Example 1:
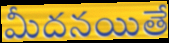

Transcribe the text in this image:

మీదనయితే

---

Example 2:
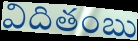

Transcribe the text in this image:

విదితంబు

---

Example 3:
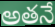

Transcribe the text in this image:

అతనే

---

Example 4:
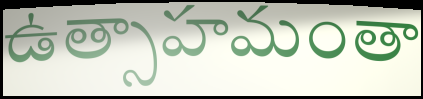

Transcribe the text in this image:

ఉత్సాహమంతా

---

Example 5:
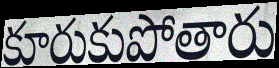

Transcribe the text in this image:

కూరుకుపోతారు